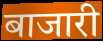
बाजारी